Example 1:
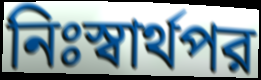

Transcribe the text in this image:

নিঃস্বার্থপর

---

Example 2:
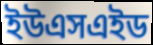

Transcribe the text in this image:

ইউএসএইড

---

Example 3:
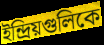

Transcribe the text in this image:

ইন্দ্রিয়গুলিকে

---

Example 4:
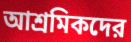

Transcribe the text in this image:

আশ্রমিকদের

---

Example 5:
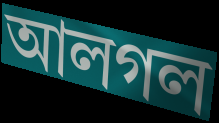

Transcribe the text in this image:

আলগল